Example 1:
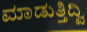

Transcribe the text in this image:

ಮಾಡುತ್ತಿದ್ವಿ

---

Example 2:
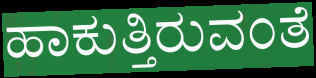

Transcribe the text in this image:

ಹಾಕುತ್ತಿರುವಂತೆ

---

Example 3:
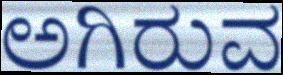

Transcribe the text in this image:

ಅಗಿರುವ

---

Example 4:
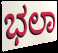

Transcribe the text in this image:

ಭಲಾ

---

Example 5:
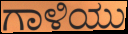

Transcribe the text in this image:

ಗಾಳಿಯು